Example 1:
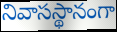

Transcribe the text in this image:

నివాసస్థానంగా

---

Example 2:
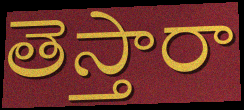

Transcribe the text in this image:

తెస్తారా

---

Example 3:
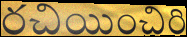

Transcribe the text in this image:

రచియించిరి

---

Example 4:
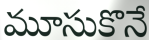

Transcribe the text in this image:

మూసుకొనే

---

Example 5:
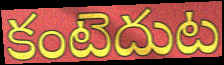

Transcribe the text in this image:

కంటెదుట